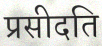
प्रसीदति